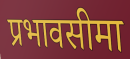
प्रभावसीमा